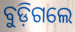
ବୁଡ଼ିଗଲେ